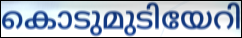
കൊടുമുടിയേറി